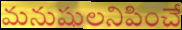
మనుషులనిపించే